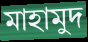
মাহামুদ